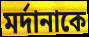
মর্দানাকে